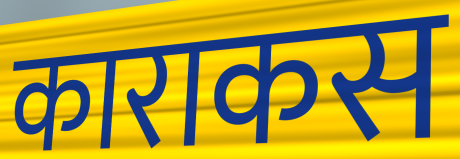
काराकस